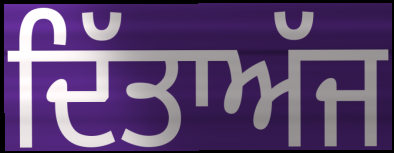
ਦਿੱਤਾਅੱਜ